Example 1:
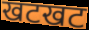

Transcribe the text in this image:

खटखट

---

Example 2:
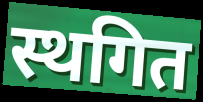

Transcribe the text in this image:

स्थगित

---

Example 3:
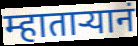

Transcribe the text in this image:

म्हातार्‍यानं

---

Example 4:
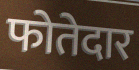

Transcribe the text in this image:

फोतेदार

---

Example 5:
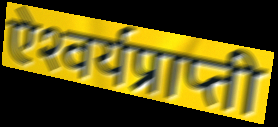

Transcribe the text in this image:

ऐश्वर्यप्राप्ती